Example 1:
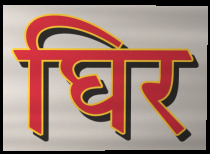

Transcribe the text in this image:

घिर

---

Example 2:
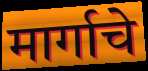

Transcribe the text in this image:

मार्गाचे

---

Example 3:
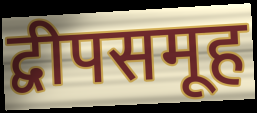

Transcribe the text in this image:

द्वीपसमूह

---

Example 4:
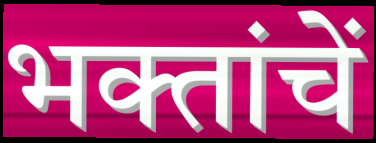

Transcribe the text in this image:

भक्तांचें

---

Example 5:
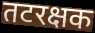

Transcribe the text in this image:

तटरक्षक